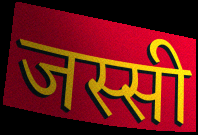
जस्सी